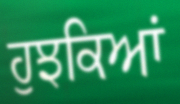
ਹੁਝਕਿਆਂ